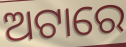
ଅଟାରେ